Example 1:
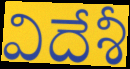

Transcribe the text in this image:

విదేశీ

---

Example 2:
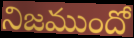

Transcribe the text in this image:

నిజముందో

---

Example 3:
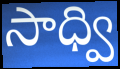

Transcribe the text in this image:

సాధ్వి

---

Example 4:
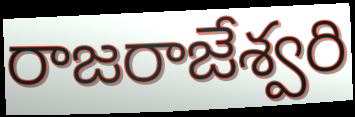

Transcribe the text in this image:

రాజరాజేశ్వరి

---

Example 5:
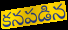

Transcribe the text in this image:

కనపడిన